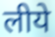
लीये